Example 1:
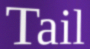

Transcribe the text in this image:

Tail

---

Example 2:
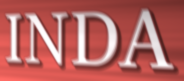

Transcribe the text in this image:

INDA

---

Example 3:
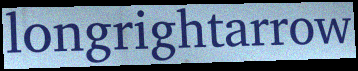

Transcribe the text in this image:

longrightarrow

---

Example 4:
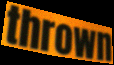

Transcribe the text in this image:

thrown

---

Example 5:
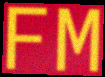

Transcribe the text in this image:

FM